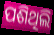
ପଶିଥିଲି